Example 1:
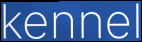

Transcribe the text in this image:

kennel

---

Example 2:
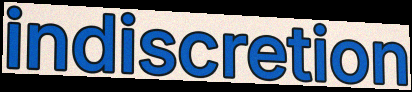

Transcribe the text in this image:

indiscretion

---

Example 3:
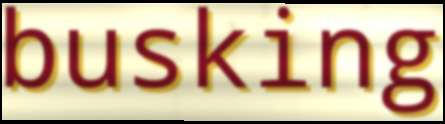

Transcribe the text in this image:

busking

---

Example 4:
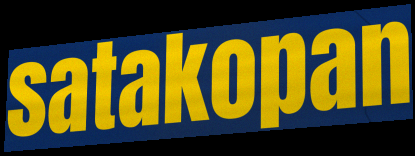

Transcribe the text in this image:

satakopan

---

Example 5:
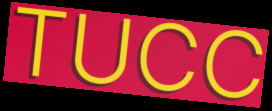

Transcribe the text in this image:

TUCC